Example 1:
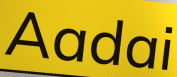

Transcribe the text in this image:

Aadai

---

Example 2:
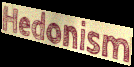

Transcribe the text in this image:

Hedonism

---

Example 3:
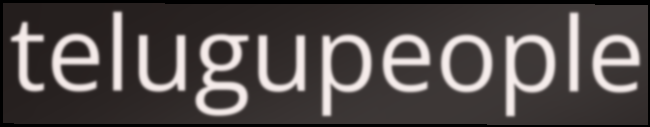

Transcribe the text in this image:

telugupeople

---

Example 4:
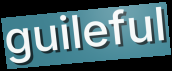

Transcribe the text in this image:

guileful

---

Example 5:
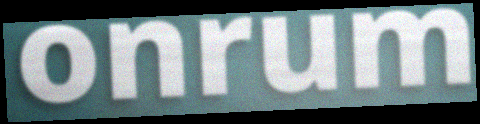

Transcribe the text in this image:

onrum